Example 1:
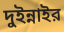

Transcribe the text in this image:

দুইন্নাইর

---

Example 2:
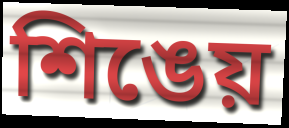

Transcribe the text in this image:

শিঙেয়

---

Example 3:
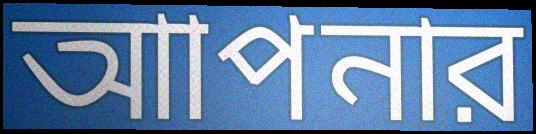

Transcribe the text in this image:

আাপনার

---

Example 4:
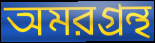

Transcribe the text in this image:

অমরগ্রন্থ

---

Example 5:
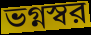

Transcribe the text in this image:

ভগ্নস্বর